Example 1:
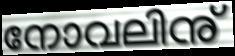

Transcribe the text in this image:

നോവലിനു്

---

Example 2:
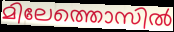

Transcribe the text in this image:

മിലേത്തൊസിൽ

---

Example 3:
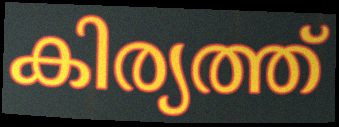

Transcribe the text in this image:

കിര്യത്ത്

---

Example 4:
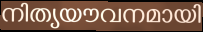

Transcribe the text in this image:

നിത്യയൗവനമായി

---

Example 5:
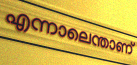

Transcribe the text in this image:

എന്നാലെന്താണ്